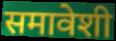
समावेशी